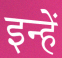
इन्‍हें